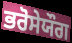
ਭਰੋਸੇਯੌਗ